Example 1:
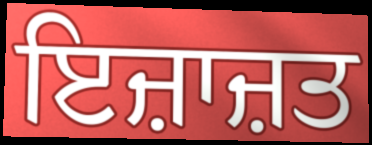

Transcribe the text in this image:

ਇਜ਼ਾਜ਼ਤ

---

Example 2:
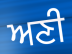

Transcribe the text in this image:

ਅਣੀ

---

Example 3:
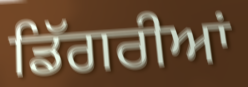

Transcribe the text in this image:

ਡਿੱਗਰੀਆਂ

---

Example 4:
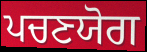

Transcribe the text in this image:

ਪਚਣਯੋਗ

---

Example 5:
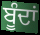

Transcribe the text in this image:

ਬੂੰਦਾਂ